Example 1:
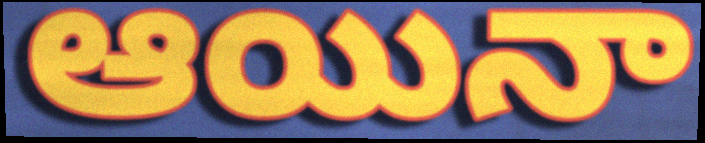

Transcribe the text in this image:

ఆయినా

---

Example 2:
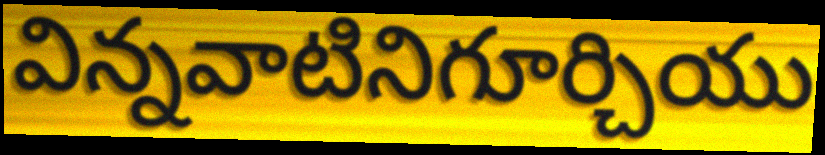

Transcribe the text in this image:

విన్నవాటినిగూర్చియు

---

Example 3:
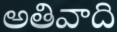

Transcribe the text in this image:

అతివాది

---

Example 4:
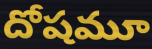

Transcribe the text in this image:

దోషమూ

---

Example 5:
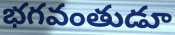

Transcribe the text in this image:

భగవంతుడూ